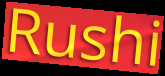
Rushi